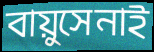
বায়ুসেনাই